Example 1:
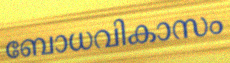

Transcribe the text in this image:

ബോധവികാസം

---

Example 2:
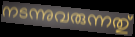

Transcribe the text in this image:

നടന്നുവരുന്നതു്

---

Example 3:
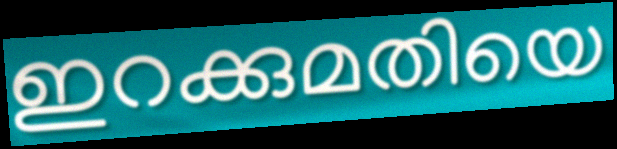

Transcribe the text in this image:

ഇറക്കുമതിയെ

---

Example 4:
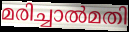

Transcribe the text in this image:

മരിച്ചാൽമതി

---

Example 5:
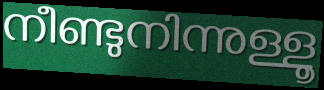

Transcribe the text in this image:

നീണ്ടുനിന്നുള്ളൂ